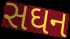
સઘન